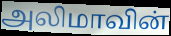
அலிமாவின்